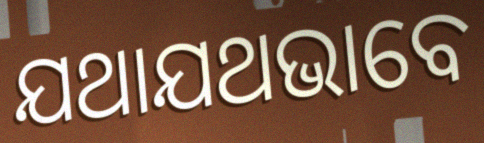
ଯଥାଯଥଭାବେ